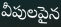
వీపులపైన